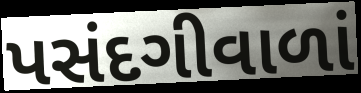
પસંદગીવાળાં